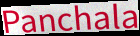
Panchala